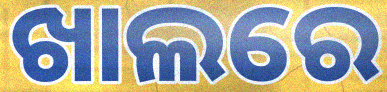
ଖାଲରେ